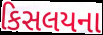
કિસલયના